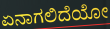
ಏನಾಗಲಿದೆಯೋ